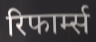
रिफार्म्स